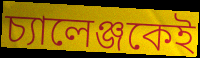
চ্যালেঞ্জকেই